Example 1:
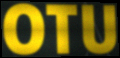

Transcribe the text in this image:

OTU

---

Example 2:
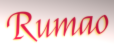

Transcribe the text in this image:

Rumao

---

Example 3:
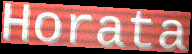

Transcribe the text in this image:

Horata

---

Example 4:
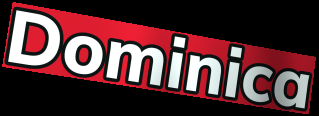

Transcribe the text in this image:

Dominica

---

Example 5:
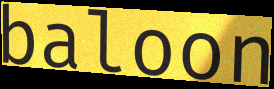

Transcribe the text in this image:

baloon